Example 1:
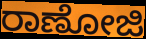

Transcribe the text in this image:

ರಾಣೋಜಿ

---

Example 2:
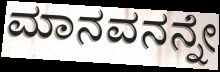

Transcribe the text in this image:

ಮಾನವನನ್ನೇ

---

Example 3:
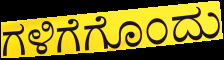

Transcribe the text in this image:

ಗಳಿಗೆಗೊಂದು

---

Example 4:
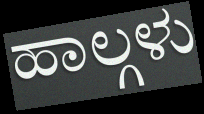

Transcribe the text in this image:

ಹಾಲ್ಗಳು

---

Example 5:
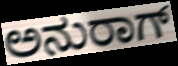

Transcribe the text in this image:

ಅನುರಾಗ್